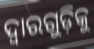
ଦ୍ୱାରଗୁଡ଼ିକୁ